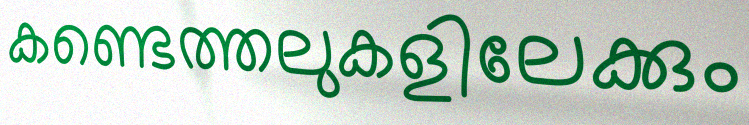
കണ്ടെത്തലുകളിലേക്കും